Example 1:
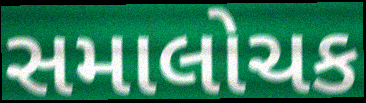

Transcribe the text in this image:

સમાલોચક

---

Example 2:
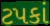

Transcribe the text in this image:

ટપકાં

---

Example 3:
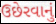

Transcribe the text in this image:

ઉછેરવાનું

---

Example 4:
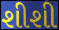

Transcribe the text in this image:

શીશી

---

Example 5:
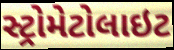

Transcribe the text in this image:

સ્ટ્રોમેટોલાઇટ